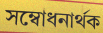
সম্বোধনাৰ্থক